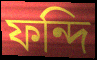
ফন্দি